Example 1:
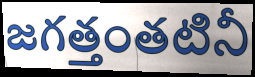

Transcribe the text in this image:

జగత్తంతటినీ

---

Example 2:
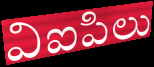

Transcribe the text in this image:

విఐపిలు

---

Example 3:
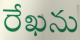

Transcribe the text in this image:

రేఖను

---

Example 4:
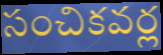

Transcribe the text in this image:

సంచికవర్ల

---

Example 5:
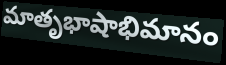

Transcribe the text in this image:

మాతృభాషాభిమానం